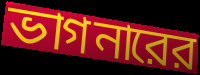
ভাগনারের